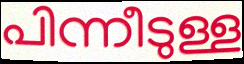
പിന്നീടുള്ള